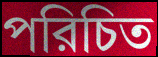
পরিচিত